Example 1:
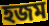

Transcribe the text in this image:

হজম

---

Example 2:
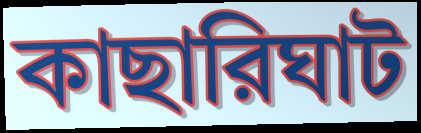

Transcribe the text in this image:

কাছারিঘাট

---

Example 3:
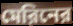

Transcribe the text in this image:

মেরিনের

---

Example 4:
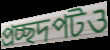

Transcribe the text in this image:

প্রচ্ছদপটও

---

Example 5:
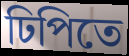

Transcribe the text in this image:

ঢিপিতে